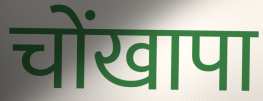
चोंखापा